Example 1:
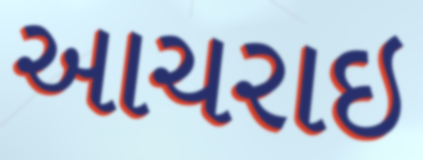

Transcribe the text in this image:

આચરાઇ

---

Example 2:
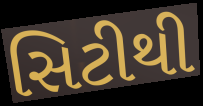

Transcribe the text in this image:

સિટીથી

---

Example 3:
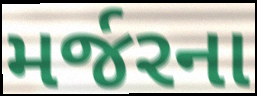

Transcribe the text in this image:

મર્જરના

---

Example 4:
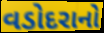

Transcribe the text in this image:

વડોદરાનો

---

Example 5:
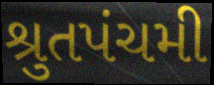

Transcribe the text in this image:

શ્રુતપંચમી